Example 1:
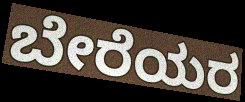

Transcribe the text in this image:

ಬೇರೆಯರ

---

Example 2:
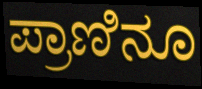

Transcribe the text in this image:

ಪ್ರಾಣಿನೂ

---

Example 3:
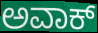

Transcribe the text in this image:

ಅವಾಕ್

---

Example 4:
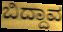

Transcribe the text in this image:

ಬಿದ್ದಾವ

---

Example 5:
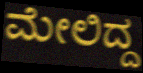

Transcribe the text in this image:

ಮೇಲಿದ್ದ